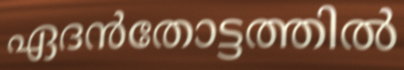
ഏദൻതോട്ടത്തിൽ